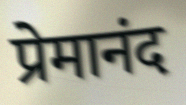
प्रेमानंद